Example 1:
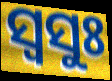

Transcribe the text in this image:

ସ୍ଵସୁଃ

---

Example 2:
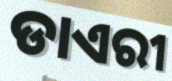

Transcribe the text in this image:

ଡାଏରୀ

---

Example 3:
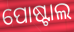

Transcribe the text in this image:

ପୋଷ୍ଟାଲ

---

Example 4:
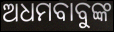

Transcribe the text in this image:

ଅଧମବାବୁଙ୍କ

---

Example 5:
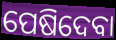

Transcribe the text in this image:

ପେଷିଦେବା